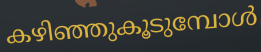
കഴിഞ്ഞുകൂടുമ്പോൾ